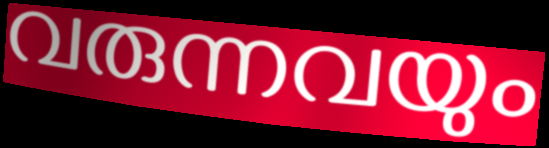
വരുന്നവയും